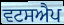
ਵਟਸਐਪ